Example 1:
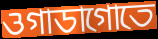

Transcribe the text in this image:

ওগাডাগোতে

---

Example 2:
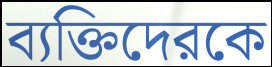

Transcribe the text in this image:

ব্যক্তিদেরকে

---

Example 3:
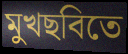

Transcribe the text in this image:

মুখছবিতে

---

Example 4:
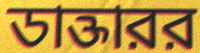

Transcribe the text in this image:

ডাক্তারর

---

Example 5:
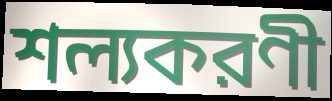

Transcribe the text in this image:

শল্যকরণী